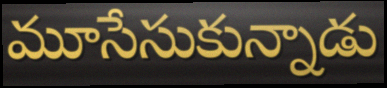
మూసేసుకున్నాడు